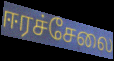
ஈரச்சேலை